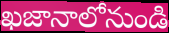
ఖజానాలోనుండి